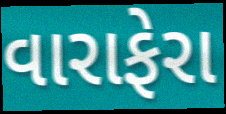
વારાફેરા